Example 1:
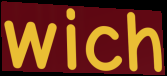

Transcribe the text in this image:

wich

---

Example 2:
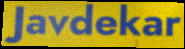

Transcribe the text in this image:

Javdekar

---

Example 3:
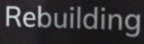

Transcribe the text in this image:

Rebuilding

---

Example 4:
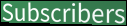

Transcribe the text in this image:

Subscribers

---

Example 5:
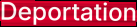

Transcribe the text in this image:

Deportation